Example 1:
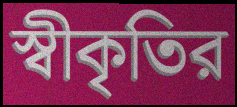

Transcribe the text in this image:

স্বীকৃতির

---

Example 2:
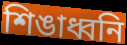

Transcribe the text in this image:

শিঙাধ্বনি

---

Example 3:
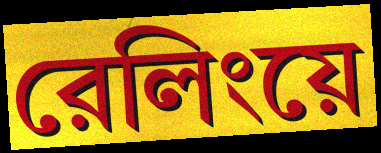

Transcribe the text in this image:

রেলিংয়ে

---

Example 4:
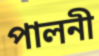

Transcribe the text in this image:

পালনী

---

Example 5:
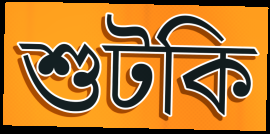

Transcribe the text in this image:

শুটকি